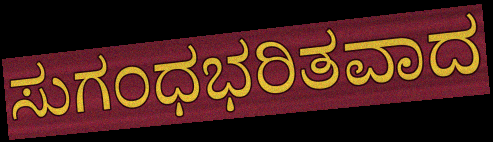
ಸುಗಂಧಭರಿತವಾದ